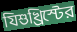
যিশুখ্রিস্টের